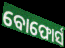
ବୋଫୋର୍ସ